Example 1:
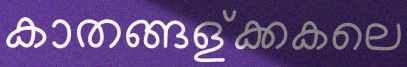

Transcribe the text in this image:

കാതങ്ങള്ക്കകലെ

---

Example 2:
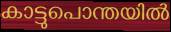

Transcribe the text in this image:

കാട്ടുപൊന്തയിൽ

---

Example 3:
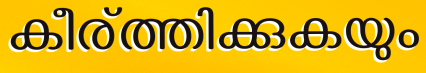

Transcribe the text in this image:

കീര്ത്തിക്കുകയും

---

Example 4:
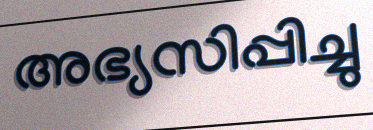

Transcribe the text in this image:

അഭ്യസിപ്പിച്ചു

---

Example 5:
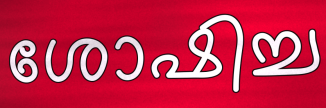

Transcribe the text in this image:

ശോഷിച്ച